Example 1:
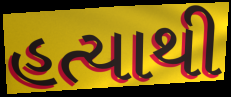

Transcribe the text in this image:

હત્યાથી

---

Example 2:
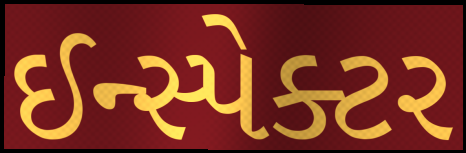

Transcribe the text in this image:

ઈન્સ્પેક્ટર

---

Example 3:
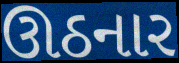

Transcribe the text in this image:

ઊઠનાર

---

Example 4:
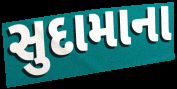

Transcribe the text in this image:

સુદામાના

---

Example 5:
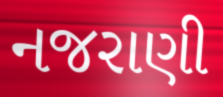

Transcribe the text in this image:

નજરાણી